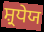
ਸ਼੍ਰਧੇਯ